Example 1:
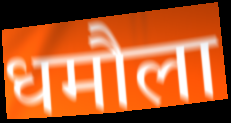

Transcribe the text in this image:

धमौला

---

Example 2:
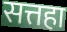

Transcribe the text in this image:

सत्तहा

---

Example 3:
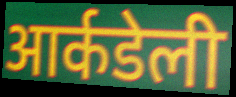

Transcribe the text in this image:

आर्कडेली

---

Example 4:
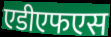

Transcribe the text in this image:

एडीएफएस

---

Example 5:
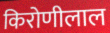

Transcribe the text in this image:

किरोणीलाल